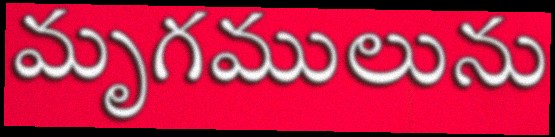
మృగములును